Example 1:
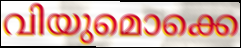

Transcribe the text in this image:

വിയുമൊക്കെ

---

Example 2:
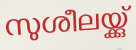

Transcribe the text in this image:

സുശീലയ്ക്കു്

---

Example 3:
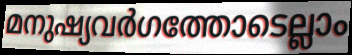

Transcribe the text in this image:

മനുഷ്യവർഗത്തോടെല്ലാം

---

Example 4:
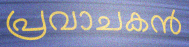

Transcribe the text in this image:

പ്രവാചകൻ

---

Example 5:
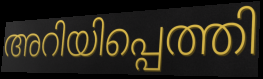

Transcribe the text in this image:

അറിയിപ്പെത്തി